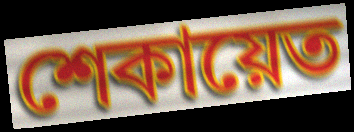
শেকায়েত